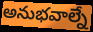
అనుభవాల్నే